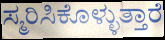
ಸ್ಮರಿಸಿಕೊಳ್ಳುತ್ತಾರೆ